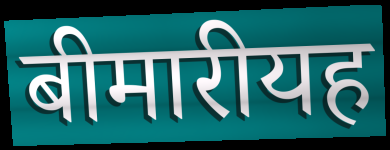
बीमारीयह